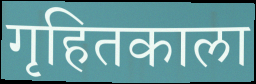
गृहितकाला